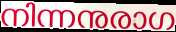
നിന്നനുരാഗ